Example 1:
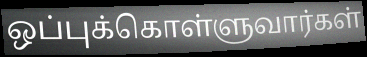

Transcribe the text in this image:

ஒப்புக்கொள்ளுவார்கள்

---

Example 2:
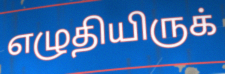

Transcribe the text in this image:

எழுதியிருக்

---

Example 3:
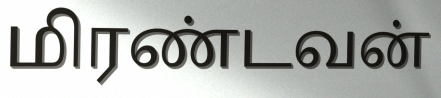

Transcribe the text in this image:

மிரண்டவன்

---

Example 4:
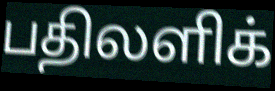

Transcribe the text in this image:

பதிலளிக்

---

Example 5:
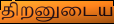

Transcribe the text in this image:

திறனுடைய